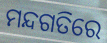
ମନ୍ଦଗତିରେ